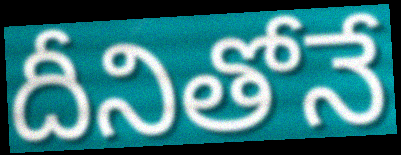
దీనితోనే